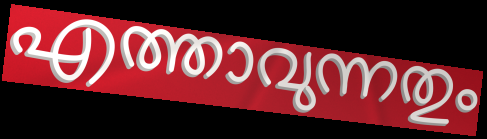
എത്താവുന്നതും